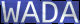
WADA